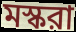
মস্করা